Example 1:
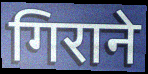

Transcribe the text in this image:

गिराने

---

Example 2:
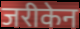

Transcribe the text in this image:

जरीकेन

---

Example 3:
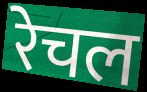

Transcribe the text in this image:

रेचल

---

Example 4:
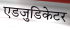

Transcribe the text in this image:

एडजुडिकेटर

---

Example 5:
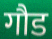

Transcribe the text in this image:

गौड